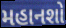
મહાનશો